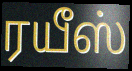
ரயீஸ்